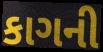
કાગની